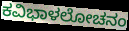
ಕವಿಭಾಳಲೋಚನಂ